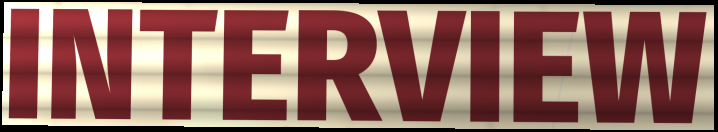
INTERVIEW